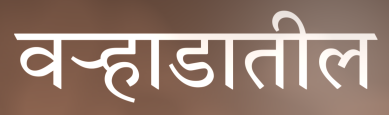
वऱ्हाडातील